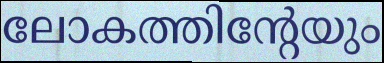
ലോകത്തിന്റേയും